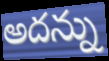
అదన్ను